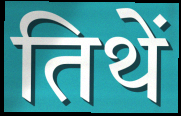
तिथें